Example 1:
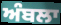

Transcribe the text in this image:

ਅੰਬਲਾ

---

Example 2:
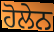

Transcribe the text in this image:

ਹੋਲੇਨ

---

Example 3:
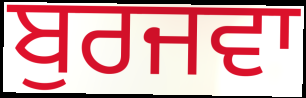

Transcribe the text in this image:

ਬੁਰਜਵਾ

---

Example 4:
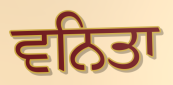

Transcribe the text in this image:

ਵਨਿਤਾ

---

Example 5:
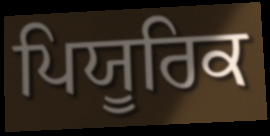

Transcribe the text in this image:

ਪਿਯੂਰਿਕ